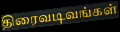
திரைவடிவங்கள்